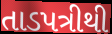
તાડપત્રીથી